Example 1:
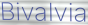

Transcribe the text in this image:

Bivalvia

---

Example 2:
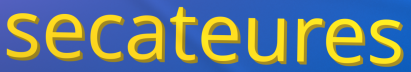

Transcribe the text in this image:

secateures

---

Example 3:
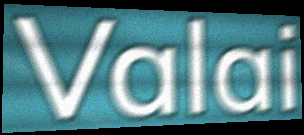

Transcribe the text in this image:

Valai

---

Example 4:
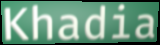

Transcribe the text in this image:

Khadia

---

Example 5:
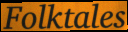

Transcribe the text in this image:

Folktales